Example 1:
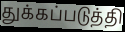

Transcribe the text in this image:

துக்கப்படுத்தி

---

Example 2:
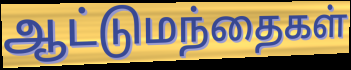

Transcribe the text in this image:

ஆட்டுமந்தைகள்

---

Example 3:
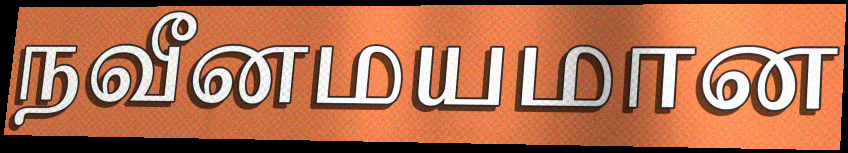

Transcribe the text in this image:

நவீனமயமான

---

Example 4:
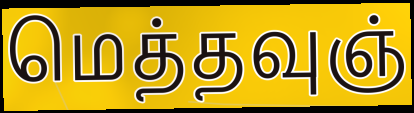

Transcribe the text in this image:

மெத்தவுஞ்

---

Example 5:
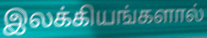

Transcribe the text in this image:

இலக்கியங்களால்